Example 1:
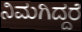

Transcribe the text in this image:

ನಿಮಗಿದ್ದರೆ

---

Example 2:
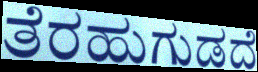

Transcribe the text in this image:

ತೆರಹುಗುಡದೆ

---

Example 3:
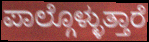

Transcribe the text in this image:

ಪಾಲ್ಗೊಳ್ಳುತ್ತಾರೆ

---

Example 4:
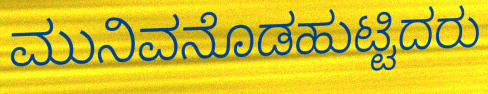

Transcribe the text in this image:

ಮುನಿವನೊಡಹುಟ್ಟಿದರು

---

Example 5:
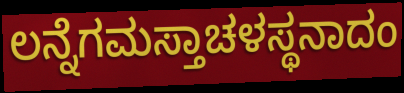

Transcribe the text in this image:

ಲನ್ನೆಗಮಸ್ತಾಚಳಸ್ಥನಾದಂ